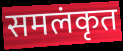
समलंकृत